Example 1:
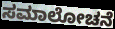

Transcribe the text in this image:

ಸಮಾಲೋಚನೆ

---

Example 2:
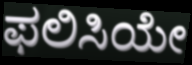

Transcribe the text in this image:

ಫಲಿಸಿಯೇ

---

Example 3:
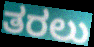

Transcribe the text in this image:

ತರಲು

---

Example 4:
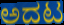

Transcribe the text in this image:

ಅದಟ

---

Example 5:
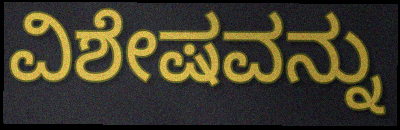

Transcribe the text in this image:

ವಿಶೇಷವನ್ನು